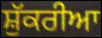
ਸ਼ੁੱਕਰੀਆ